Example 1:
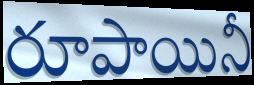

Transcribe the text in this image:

రూపాయినీ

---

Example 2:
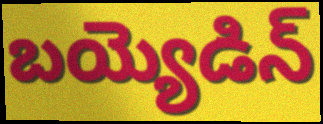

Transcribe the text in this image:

బయ్యెడిన్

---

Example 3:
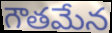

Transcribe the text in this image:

గౌతమేన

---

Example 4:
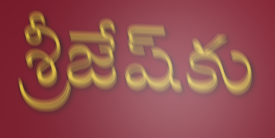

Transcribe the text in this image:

శ్రీజేష్‌కు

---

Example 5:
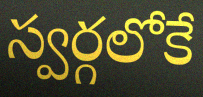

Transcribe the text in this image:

స్వర్గలోకే